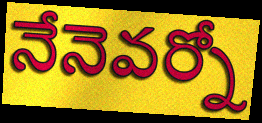
నేనెవర్నో